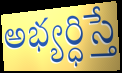
అభ్యర్ధిస్తే